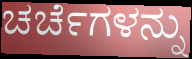
ಚರ್ಚೆಗಳನ್ನು